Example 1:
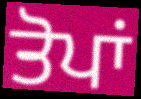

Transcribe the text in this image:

ਤੋਪਾਂ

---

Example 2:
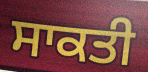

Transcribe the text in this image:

ਸਾਕਤੀ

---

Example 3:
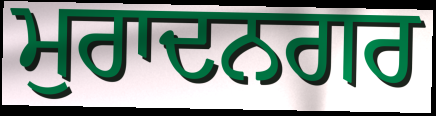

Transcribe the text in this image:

ਮੁਰਾਦਨਗਰ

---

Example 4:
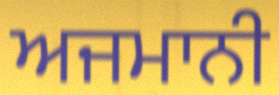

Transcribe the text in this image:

ਅਜਮਾਨੀ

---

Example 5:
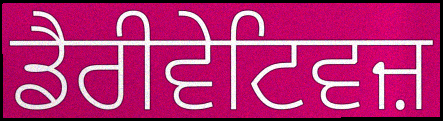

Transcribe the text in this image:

ਡੈਰੀਵੇਟਿਵਜ਼